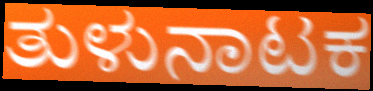
ತುಳುನಾಟಕ